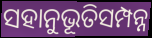
ସହାନୁଭୂତିସମ୍ପନ୍ନ